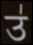
उ॑